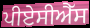
ਪੀਏਸੀਐੱਸ